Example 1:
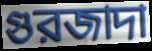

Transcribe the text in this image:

গুরজাদা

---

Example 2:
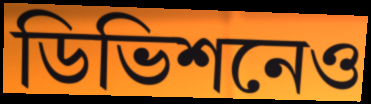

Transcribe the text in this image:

ডিভিশনেও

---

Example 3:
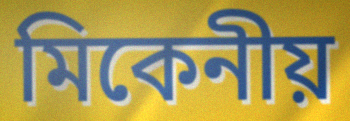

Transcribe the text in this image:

মিকেনীয়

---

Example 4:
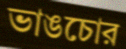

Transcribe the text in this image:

ভাঙচোর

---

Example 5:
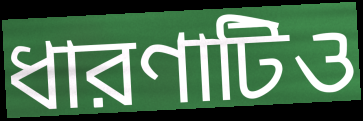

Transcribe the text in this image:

ধারণাটিও